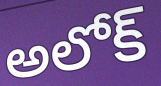
అలోక్